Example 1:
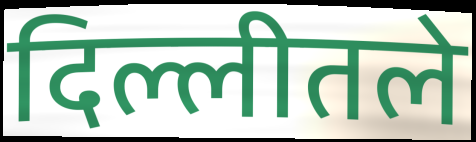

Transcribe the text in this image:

दिल्लीतले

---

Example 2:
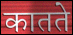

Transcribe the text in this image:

कातते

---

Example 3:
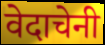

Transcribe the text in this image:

वेदाचेनी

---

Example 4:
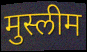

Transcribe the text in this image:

मुस्लीम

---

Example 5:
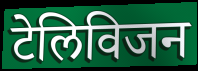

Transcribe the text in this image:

टेलिविजन